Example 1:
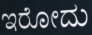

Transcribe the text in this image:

ಇರೋದು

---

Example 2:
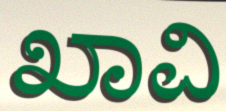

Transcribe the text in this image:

ಖಾವಿ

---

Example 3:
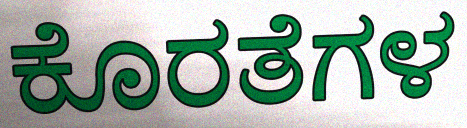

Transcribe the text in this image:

ಕೊರತೆಗಳ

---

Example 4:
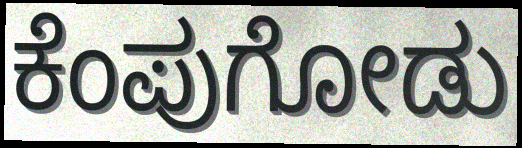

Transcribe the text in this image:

ಕೆಂಪುಗೋಡು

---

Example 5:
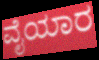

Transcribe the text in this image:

ವೈಯಾರ